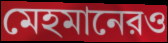
মেহমানেরও